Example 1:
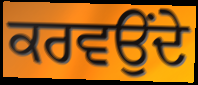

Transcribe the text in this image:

ਕਰਵਉਂਦੇ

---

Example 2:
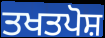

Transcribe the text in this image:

ਤਖਤਪੋਸ਼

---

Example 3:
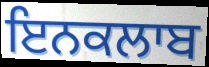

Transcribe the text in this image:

ਇਨਕਲਾਬ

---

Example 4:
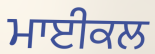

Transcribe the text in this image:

ਮਾਈਕਲ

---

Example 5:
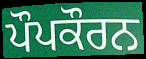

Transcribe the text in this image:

ਪੌਪਕੌਰਨ